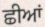
ਛੀਆਂ